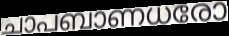
ചാപബാണധരോ